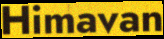
Himavan